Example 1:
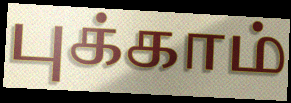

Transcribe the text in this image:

புக்காம்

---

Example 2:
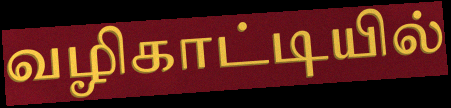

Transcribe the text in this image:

வழிகாட்டியில்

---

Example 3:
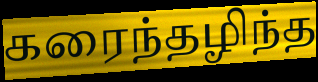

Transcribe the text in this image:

கரைந்தழிந்த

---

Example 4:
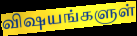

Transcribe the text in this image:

விஷயங்களுள்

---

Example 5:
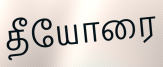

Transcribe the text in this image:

தீயோரை